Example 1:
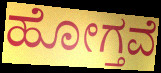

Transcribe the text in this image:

ಹೋಗ್ತವೆ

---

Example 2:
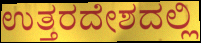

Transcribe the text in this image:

ಉತ್ತರದೇಶದಲ್ಲಿ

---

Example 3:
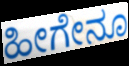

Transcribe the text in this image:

ಹೀಗೇನೂ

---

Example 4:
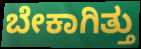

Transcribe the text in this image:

ಬೇಕಾಗಿತ್ತು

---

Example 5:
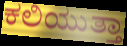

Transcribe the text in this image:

ಕಲಿಯುತ್ತಾ